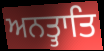
ਅਨਤ੍ਤਾਤਿ